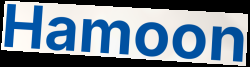
Hamoon